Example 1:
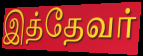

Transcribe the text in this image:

இத்தேவர்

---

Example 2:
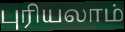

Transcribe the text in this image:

புரியலாம்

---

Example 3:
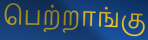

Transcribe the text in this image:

பெற்றாங்கு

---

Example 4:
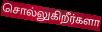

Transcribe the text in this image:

சொல்லுகிறீர்களா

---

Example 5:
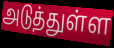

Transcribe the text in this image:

அடுத்துள்ள